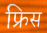
फ्रिस